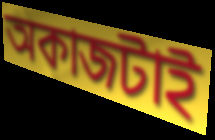
অকাজটাই